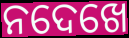
ନଦେଖେ